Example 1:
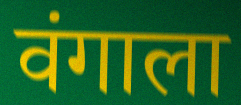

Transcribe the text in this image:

वंगाला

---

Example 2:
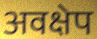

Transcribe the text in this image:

अवक्षेप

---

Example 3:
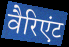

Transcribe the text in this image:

वैरिएंट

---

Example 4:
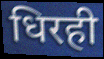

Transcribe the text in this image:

धिरही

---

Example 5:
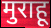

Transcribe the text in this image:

मुराहू